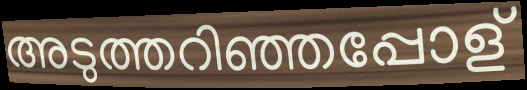
അടുത്തറിഞ്ഞപ്പോള്